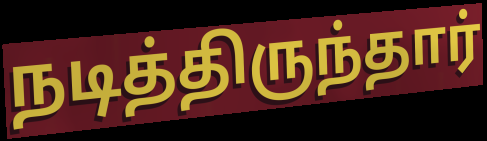
நடித்திருந்தார்